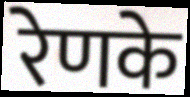
रेणके